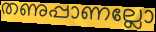
തണുപ്പാണല്ലോ